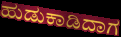
ಹುಡುಕಾಡಿದಾಗ